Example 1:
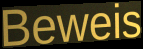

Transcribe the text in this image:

Beweis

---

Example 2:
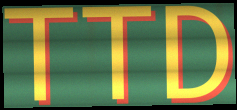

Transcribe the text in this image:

TTD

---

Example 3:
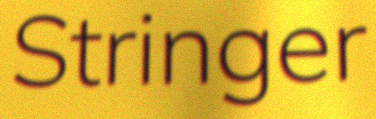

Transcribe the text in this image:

Stringer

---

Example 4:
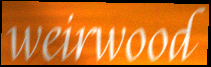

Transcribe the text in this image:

weirwood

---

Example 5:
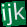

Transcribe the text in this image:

ijk